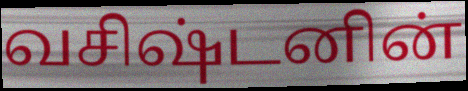
வசிஷ்டனின்